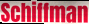
Schiffman